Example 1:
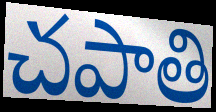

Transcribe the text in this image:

చపాతి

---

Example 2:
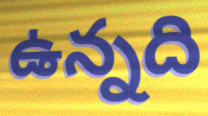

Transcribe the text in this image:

ఉన్నది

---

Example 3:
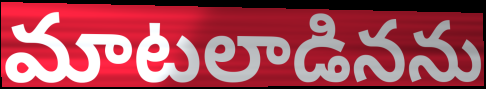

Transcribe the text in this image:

మాటలాడినను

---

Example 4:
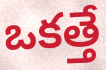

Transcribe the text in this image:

ఒకత్తే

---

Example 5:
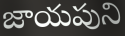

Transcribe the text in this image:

జాయపుని